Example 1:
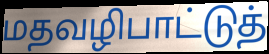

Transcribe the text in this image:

மதவழிபாட்டுத்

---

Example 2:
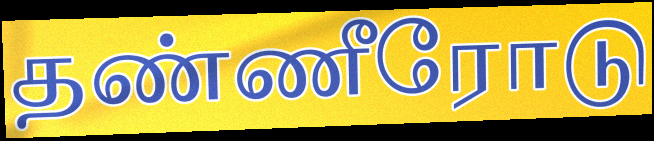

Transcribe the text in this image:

தண்ணீரோடு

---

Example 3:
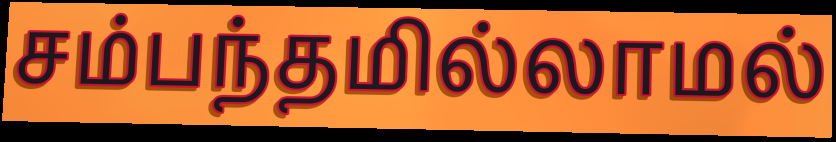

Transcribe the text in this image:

சம்பந்தமில்லாமல்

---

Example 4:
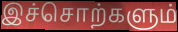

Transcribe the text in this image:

இச்சொற்களும்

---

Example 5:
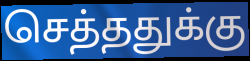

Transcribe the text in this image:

செத்ததுக்கு